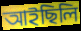
আইছিলি